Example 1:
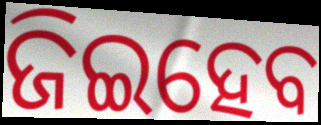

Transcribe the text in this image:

ଜିଇହେବ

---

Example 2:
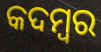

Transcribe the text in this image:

କଦମ୍ବର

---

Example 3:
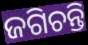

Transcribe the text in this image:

ଜଗିଚନ୍ତି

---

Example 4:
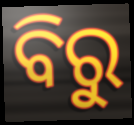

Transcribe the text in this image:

ବିରୁ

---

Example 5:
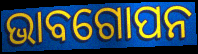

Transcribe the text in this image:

ଭାବଗୋପନ